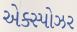
એક્સ્પોઝર